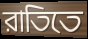
রাতিতে